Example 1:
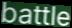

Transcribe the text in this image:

battle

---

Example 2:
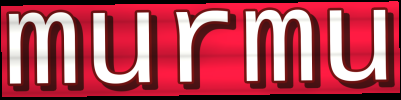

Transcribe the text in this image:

murmu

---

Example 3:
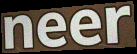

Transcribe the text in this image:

neer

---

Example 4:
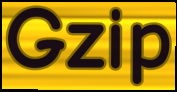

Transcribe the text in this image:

Gzip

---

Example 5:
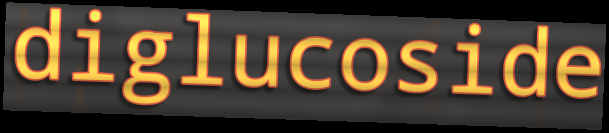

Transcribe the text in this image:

diglucoside